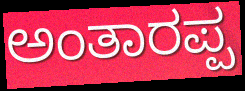
ಅಂತಾರಪ್ಪ